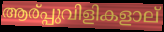
ആര്പ്പുവിളികളാല്